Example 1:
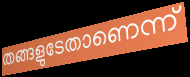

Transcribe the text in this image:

തങ്ങളുടേതാണെന്ന്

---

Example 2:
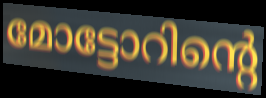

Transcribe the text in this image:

മോട്ടോറിന്റെ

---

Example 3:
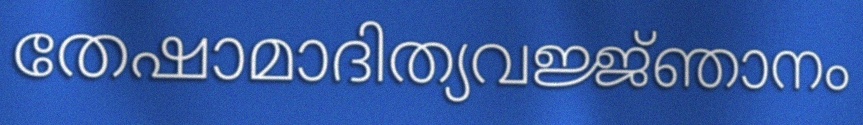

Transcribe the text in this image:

തേഷാമാദിത്യവജ്ജ്ഞാനം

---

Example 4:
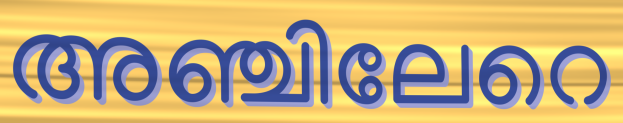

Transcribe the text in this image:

അഞ്ചിലേറെ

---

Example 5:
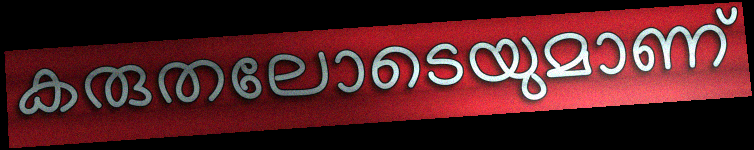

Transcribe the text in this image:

കരുതലോടെയുമാണ്